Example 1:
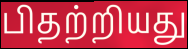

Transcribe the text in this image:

பிதற்றியது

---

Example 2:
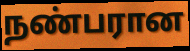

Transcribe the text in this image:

நண்பரான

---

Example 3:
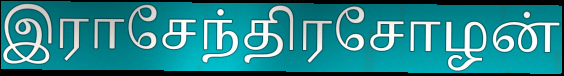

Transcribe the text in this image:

இராசேந்திரசோழன்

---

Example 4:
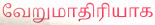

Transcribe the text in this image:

வேறுமாதிரியாக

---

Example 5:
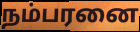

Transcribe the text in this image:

நம்பரனை